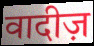
वादीज़